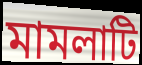
মামলাটি